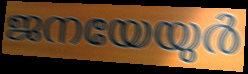
ജനയേയുർ